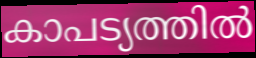
കാപട്യത്തിൽ